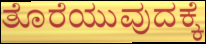
ತೊರೆಯುವುದಕ್ಕೆ